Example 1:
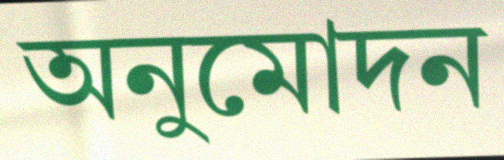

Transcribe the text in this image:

অনুমোদন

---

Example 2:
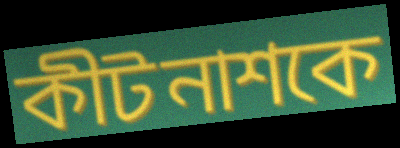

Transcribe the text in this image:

কীটনাশকে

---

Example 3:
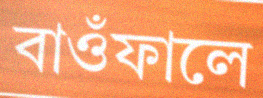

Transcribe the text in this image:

বাওঁফালে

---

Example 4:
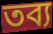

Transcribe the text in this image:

তব্য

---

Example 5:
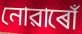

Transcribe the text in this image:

নোৱাৰোঁ